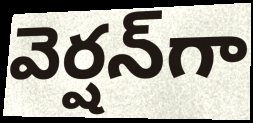
వెర్షన్‌గా